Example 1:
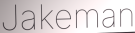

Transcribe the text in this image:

Jakeman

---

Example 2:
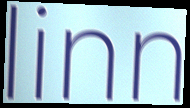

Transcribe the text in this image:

linn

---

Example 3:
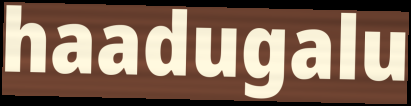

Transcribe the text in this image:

haadugalu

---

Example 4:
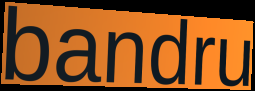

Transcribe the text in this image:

bandru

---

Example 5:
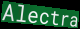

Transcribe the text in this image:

Alectra